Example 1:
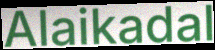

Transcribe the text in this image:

Alaikadal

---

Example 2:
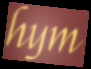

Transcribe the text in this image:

hym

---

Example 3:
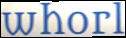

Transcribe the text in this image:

whorl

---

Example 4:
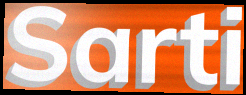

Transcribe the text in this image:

Sarti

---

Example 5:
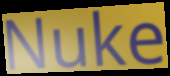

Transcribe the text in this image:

Nuke